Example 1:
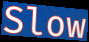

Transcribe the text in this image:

Slow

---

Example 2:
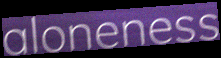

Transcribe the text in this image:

aloneness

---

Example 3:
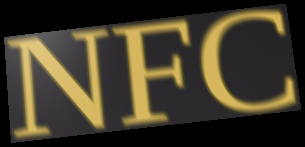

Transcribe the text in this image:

NFC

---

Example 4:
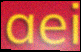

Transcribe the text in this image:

aei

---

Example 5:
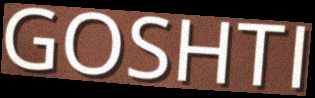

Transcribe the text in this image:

GOSHTI